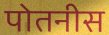
पोतनीस